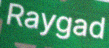
Raygad